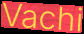
Vachi